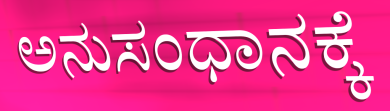
ಅನುಸಂಧಾನಕ್ಕೆ